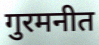
गुरमनीत